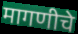
मागणीचे